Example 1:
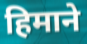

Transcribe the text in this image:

हिमाने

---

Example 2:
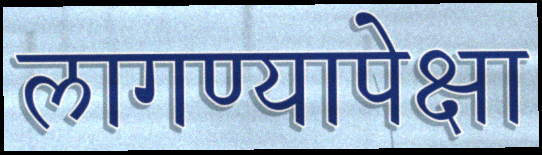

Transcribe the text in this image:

लागण्यापेक्षा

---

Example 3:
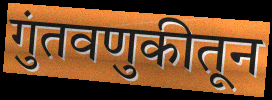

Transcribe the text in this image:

गुंतवणुकीतून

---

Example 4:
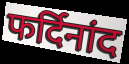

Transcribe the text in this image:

फर्दिनांद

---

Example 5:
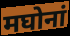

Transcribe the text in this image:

मघोनां